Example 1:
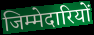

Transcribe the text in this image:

जिम्मेदारियों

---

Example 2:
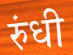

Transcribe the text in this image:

रुंधी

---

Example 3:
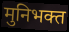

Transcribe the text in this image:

मुनिभक्त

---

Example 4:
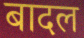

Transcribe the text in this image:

बादल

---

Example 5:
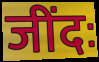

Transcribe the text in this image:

जींदः